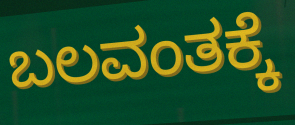
ಬಲವಂತಕ್ಕೆ